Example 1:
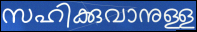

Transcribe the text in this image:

സഹിക്കുവാനുള്ള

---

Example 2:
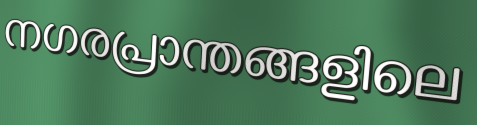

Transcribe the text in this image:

നഗരപ്രാന്തങ്ങളിലെ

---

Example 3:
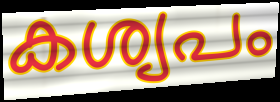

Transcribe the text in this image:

കശ്യപം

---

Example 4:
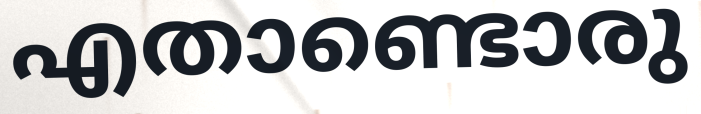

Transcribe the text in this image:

എതാണ്ടൊരു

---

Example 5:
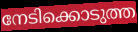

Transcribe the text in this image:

നേടിക്കൊടുത്ത